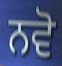
ਨਵੋ